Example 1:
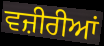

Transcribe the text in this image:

ਵਜ਼ੀਰੀਆਂ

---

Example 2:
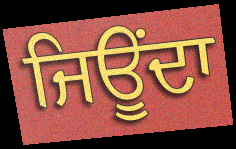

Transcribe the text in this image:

ਜਿਊੂਂਦਾ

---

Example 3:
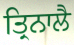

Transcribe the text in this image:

ਤ੍ਰਿਨਾਲੈ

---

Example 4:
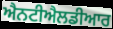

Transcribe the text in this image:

ਐਨਟੀਐਲਡੀਆਰ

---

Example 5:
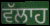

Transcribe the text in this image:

ਵੱਲਾਹ